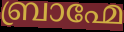
ബ്രാഹ്മേ